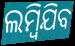
ଲମ୍ୱିଯିବ